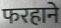
फरहाने